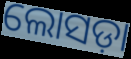
ଲୋସଡ଼ା